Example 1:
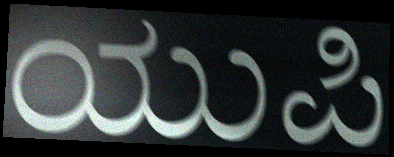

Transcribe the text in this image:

ಯುಪಿ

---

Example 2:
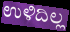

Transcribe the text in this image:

ಉಳಿದಿಲ್ಲ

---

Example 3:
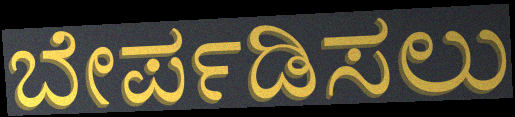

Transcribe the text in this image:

ಬೇರ್ಪಡಿಸಲು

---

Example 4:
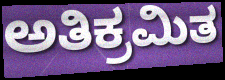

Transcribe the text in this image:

ಅತಿಕ್ರಮಿತ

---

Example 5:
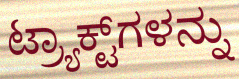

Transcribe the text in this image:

ಟ್ರ್ಯಾಕ್ಟ್‌ಗಳನ್ನು